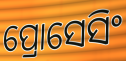
ପ୍ରୋସେସିଂ